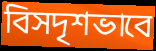
বিসদৃশভাবে